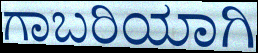
ಗಾಬರಿಯಾಗಿ